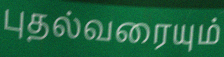
புதல்வரையும்